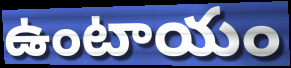
ఉంటాయం